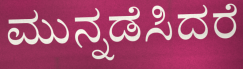
ಮುನ್ನಡೆಸಿದರೆ